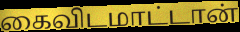
கைவிடமாட்டான்